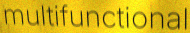
multifunctional